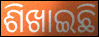
ଶିଖାଇଛି